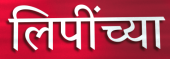
लिपींच्या